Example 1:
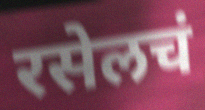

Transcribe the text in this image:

रसेलचं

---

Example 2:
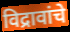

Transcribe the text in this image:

विद्रावांचे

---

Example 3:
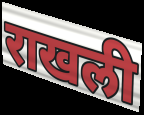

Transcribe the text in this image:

राखली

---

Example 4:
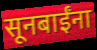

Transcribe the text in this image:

सूनबाईंना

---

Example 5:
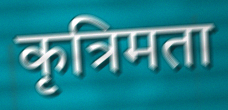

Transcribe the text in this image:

कृत्रिमता